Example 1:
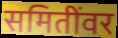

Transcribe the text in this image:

समितींवर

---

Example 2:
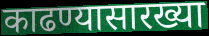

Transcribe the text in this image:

काढण्यासारख्या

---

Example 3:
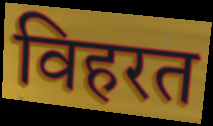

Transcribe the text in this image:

विहरत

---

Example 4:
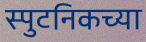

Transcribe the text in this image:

स्पुटनिकच्या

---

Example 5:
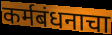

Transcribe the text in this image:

कर्मबंधनाचा